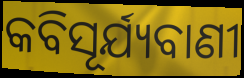
କବିସୂର୍ଯ୍ୟବାଣୀ